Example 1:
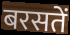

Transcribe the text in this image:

बरसतें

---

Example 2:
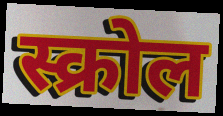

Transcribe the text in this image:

स्क्रोल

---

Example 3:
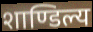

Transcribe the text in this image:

शाण्डिल्य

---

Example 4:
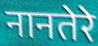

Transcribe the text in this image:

नानतेरे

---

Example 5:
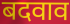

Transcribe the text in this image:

बदवाव